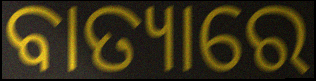
ବାତ୍ୟାରେ